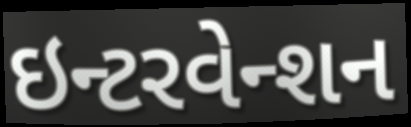
ઇન્ટરવેન્શન